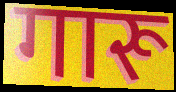
गारू